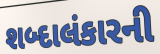
શબ્દાલંકારની